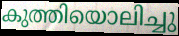
കുത്തിയൊലിച്ചു